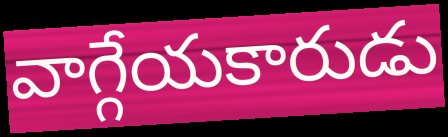
వాగ్గేయకారుడు